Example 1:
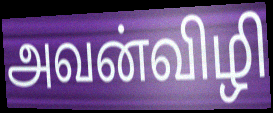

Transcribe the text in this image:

அவன்விழி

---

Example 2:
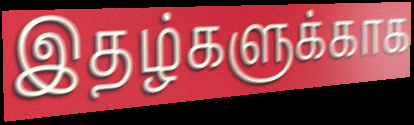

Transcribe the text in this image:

இதழ்களுக்காக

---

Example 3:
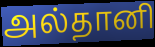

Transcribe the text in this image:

அல்தானி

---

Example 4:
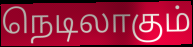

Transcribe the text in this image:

நெடிலாகும்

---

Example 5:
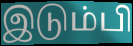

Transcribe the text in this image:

இடும்பி